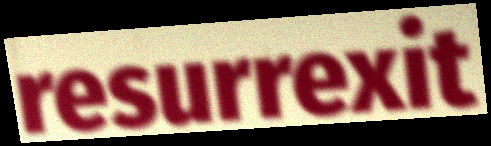
resurrexit